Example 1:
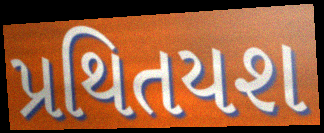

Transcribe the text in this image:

પ્રથિતયશ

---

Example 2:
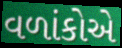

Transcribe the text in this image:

વળાંકોએ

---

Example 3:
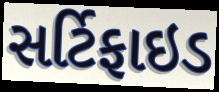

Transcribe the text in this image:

સર્ટિફાઇડ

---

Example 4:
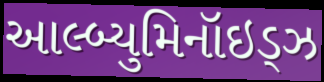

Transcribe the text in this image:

આલ્બ્યુમિનૉઇડ્ઝ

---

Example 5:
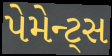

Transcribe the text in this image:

પેમેન્ટ્સ